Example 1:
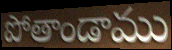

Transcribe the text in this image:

పోతాండాము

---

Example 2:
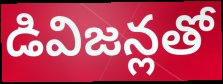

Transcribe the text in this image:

డివిజన్లతో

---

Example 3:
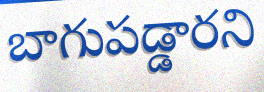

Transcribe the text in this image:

బాగుపడ్డారని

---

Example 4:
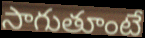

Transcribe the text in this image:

సాగుతూంటే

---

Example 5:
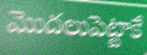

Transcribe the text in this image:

మొదలుపెట్టాకే